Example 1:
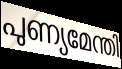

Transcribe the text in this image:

പുണ്യമേന്തി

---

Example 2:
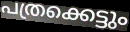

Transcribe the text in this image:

പത്രക്കെട്ടും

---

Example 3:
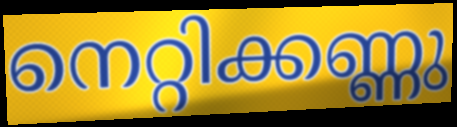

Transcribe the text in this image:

നെറ്റിക്കണ്ണു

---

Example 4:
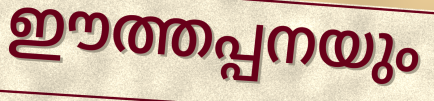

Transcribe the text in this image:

ഈത്തപ്പനയും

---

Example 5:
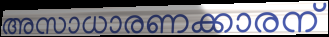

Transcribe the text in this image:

അസാധാരണക്കാരന്